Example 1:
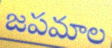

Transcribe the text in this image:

జపమాల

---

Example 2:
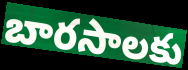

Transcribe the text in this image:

బారసాలకు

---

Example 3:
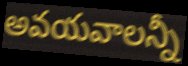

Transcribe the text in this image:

అవయవాలన్నీ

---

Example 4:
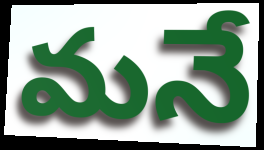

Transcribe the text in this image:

మనే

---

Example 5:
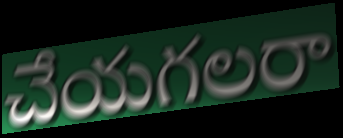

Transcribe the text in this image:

చేయగలరా